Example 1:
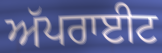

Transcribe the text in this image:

ਅੱਪਰਾਈਟ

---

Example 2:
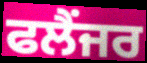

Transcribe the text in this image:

ਫਲੈਂਜਰ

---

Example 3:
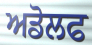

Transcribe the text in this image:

ਅਡੋਲਫ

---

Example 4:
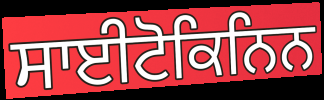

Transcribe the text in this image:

ਸਾਈਟੋਕਿਨਿਨ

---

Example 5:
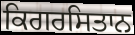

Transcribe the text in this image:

ਕਿਗਰਸਿਤਾਨ